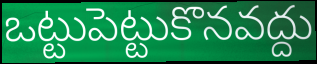
ఒట్టుపెట్టుకొనవద్దు